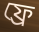
ফ্রে